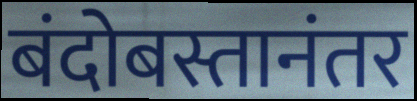
बंदोबस्तानंतर